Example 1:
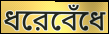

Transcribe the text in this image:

ধরেবেঁধে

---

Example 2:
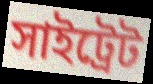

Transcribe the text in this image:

সাইট্রেট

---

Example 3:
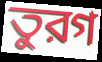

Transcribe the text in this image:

তুরগ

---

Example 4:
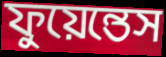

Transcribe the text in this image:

ফুয়েন্তেস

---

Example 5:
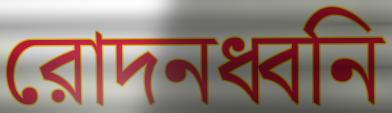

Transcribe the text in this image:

রোদনধ্বনি